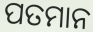
ପତମାନ